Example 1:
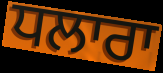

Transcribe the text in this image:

ਧਲਾਰਾ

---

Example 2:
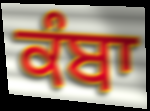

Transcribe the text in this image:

ਕੰਬਾ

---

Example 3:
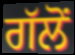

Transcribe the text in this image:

ਗੱਲੋਂ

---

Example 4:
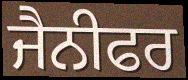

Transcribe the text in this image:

ਜੈਨੀਫਰ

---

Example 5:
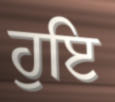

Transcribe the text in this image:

ਹੁਇ